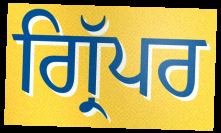
ਗ੍ਰਿੱਪਰ